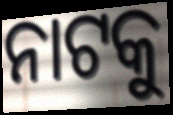
ନାଟକୁ